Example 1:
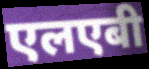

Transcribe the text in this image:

एलएबी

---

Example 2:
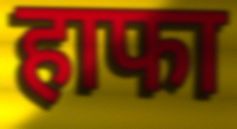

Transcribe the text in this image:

हाफा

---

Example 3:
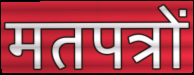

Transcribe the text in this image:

मतपत्रों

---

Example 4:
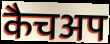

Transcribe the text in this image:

कैचअप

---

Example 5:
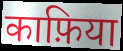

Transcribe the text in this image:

काफ़िया